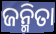
ଜନ୍ମିତା